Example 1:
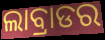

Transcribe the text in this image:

ଲାବ୍ରାଡର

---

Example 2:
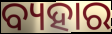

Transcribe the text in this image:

ବ୍ୟହାର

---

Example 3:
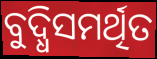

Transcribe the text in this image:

ବୁଦ୍ଧିସମର୍ଥିତ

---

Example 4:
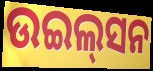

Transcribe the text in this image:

ଉଇଲ୍‌ସନ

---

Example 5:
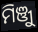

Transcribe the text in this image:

ମିଞ୍ଜୁ